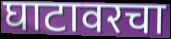
घाटावरचा